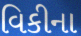
વિકીના